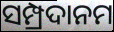
ସମ୍ପ୍ରଦାନମ